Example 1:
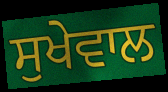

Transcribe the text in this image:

ਸੁਖੇਵਾਲ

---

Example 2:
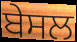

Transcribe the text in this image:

ਬੇਸਲ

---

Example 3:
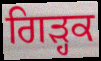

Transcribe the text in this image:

ਗਿੜ੍ਹਕ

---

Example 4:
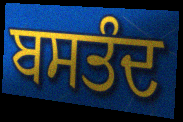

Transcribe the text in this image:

ਬਸਤੰਦ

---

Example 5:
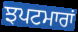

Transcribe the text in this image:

ਝਪਟਮਾਰਾਂ